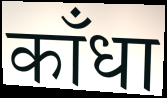
काँधा